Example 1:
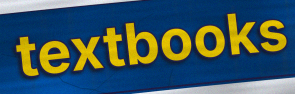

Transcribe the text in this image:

textbooks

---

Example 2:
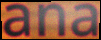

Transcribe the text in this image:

ana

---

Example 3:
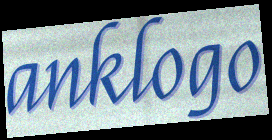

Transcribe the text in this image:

anklogo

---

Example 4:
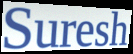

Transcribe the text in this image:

Suresh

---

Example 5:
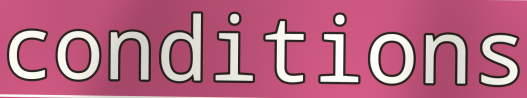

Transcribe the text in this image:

conditions